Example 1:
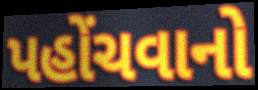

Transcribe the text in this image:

પહોંચવાનો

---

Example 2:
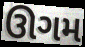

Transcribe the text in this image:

ઊગમ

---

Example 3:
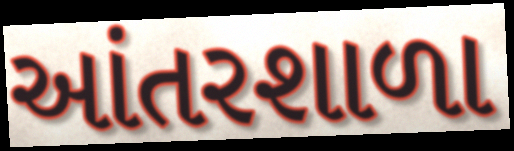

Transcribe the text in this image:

આંતરશાળા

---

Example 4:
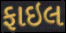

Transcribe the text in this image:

ફાઇલ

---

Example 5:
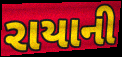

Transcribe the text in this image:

રાયાની